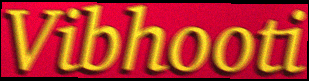
Vibhooti